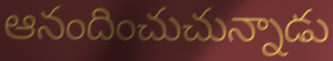
ఆనందించుచున్నాడు